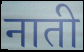
नाती